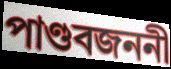
পাণ্ডবজননী